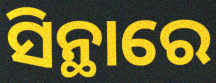
ସିନ୍ଥାରେ